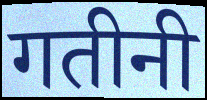
गतीनी